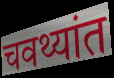
चवथ्यांत